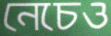
নেচেও